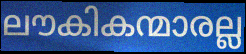
ലൗകികന്മാരല്ല